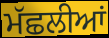
ਮੱਛਲੀਆਂ